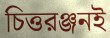
চিত্তরঞ্জনই